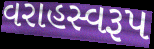
વરાહસ્વરૂપ